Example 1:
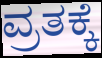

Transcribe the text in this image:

ವ್ರತಕ್ಕೆ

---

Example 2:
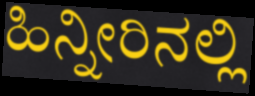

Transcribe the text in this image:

ಹಿನ್ನೀರಿನಲ್ಲಿ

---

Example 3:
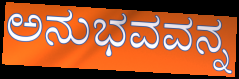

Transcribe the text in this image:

ಅನುಭವವನ್ನ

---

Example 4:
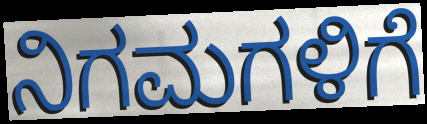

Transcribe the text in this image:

ನಿಗಮಗಳಿಗೆ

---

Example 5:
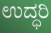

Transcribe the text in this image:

ಉದ್ಧರಿ